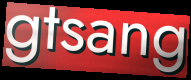
gtsang